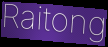
Raitong